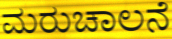
ಮರುಚಾಲನೆ